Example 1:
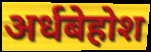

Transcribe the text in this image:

अर्धबेहोश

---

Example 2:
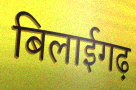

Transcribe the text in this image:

बिलाईगढ़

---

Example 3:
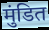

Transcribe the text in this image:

मुंडित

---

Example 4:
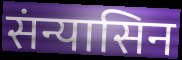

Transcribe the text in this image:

संन्यासिन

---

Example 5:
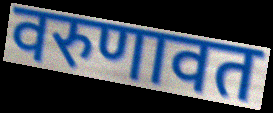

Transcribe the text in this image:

वरुणावत